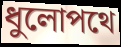
ধুলোপথে